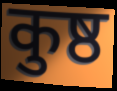
कुष्ठ